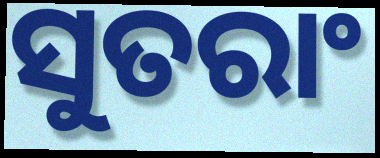
ସୁତରାଂ